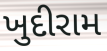
ખુદીરામ